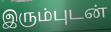
இரும்புடன்